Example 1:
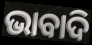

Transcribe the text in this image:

ଭାବାଦି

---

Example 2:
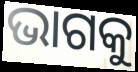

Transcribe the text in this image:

ଭାଗକୁ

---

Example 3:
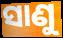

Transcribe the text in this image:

ସାଣୁ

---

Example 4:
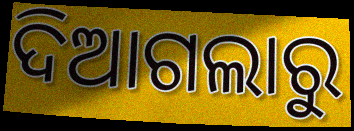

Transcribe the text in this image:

ଦିଆଗଲାରୁ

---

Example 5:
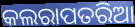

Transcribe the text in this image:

କଲରାପତରିଆ